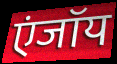
एंजॉय